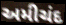
અમીચંદ